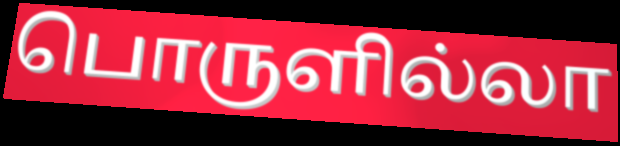
பொருளில்லா